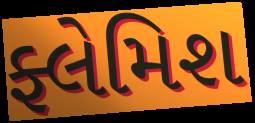
ફ્લેમિશ